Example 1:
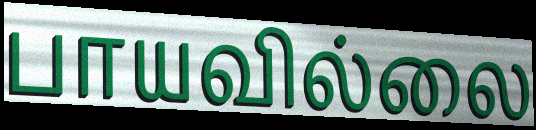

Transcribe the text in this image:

பாயவில்லை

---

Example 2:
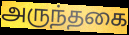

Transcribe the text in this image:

அருந்தகை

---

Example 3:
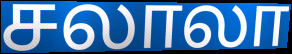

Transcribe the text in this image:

சலாலா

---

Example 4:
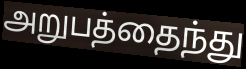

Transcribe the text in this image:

அறுபத்தைந்து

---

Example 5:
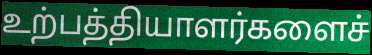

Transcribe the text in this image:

உற்பத்தியாளர்களைச்